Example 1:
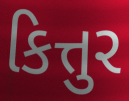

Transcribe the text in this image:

કિત્તુર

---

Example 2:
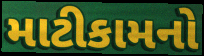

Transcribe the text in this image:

માટીકામનો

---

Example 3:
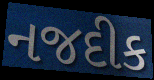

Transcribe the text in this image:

નજદીક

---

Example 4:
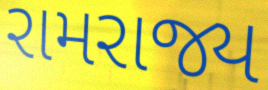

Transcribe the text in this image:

રામરાજ્ય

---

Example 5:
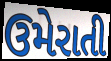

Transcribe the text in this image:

ઉમેરાતી